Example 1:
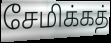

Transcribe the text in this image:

சேமிக்கத்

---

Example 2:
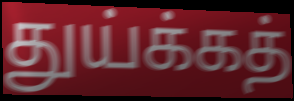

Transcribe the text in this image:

துய்க்கத்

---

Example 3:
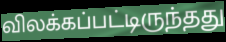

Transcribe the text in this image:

விலக்கப்பட்டிருந்தது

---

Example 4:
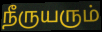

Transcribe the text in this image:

நீருயரும்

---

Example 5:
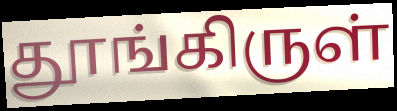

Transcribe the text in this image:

தூங்கிருள்